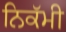
ਨਿਕੱਮੀ